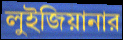
লুইজিয়ানার